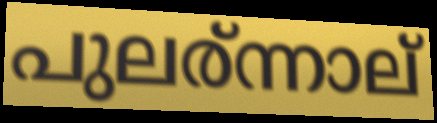
പുലര്ന്നാല്